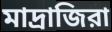
মাদ্রাজিরা